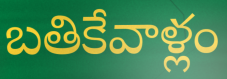
బతికేవాళ్లం